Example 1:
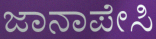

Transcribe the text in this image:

ಜಾನಾಪೇಸಿ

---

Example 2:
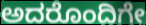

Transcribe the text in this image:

ಅದರೊಂದಿಗೇ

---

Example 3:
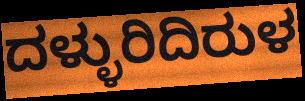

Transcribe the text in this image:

ದಳ್ಳುರಿದಿರುಳ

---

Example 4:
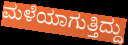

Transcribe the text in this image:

ಮಳೆಯಾಗುತ್ತಿದ್ದು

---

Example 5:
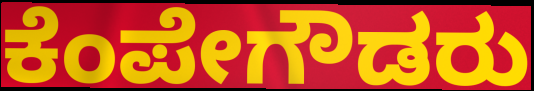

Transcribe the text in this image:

ಕೆಂಪೇಗೌಡರು